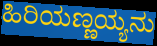
ಹಿರಿಯಣ್ಣಯ್ಯನು